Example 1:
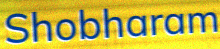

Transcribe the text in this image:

Shobharam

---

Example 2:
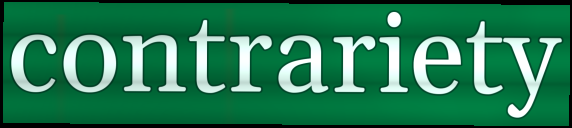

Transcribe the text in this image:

contrariety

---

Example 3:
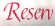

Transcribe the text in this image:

Reserv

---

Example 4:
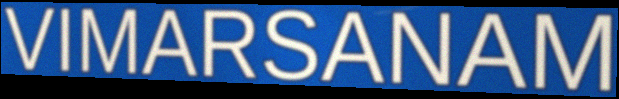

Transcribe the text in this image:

VIMARSANAM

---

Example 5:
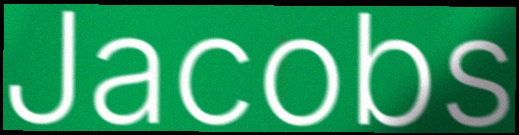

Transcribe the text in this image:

Jacobs